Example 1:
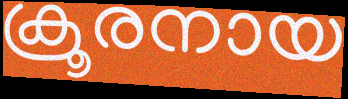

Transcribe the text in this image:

ക്രൂരനായ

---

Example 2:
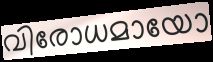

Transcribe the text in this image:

വിരോധമായോ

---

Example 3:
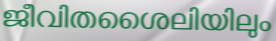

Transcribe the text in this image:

ജീവിതശൈലിയിലും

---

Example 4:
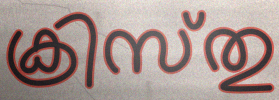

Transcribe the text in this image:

ക്രിസ്‌തു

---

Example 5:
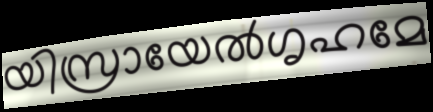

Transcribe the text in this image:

യിസ്രായേൽഗൃഹമേ